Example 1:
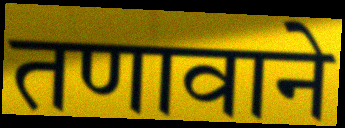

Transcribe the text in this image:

तणावाने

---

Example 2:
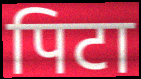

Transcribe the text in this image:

पिटा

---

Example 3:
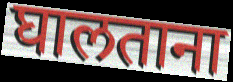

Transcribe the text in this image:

घालताना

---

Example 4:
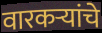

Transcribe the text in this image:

वारकऱ्यांचे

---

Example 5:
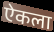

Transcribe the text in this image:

ऐकला